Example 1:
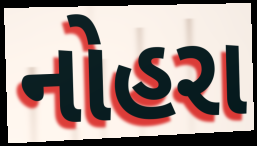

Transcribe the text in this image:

નોહરા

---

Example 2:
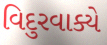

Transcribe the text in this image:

વિદુરવાક્યે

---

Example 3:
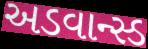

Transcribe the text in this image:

અડવાન્સ્ડ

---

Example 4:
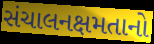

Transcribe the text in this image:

સંચાલનક્ષમતાનો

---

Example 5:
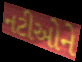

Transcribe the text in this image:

નટીઓને